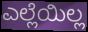
ಎಲ್ಲೆಯಿಲ್ಲ